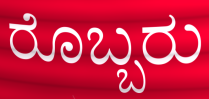
ರೊಬ್ಬರು